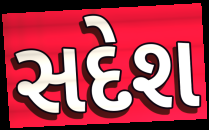
સદેશ